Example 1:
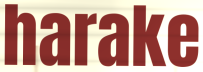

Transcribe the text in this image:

harake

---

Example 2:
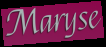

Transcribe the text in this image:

Maryse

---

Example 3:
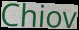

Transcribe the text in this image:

Chiov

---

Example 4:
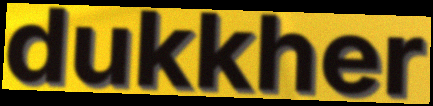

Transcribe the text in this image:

dukkher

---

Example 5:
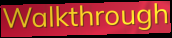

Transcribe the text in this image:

Walkthrough